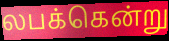
லபக்கென்று